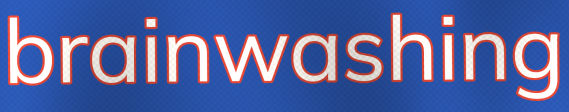
brainwashing